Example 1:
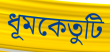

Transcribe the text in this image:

ধূমকেতুটি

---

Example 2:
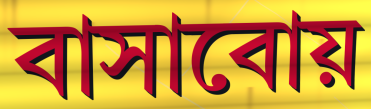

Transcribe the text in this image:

বাসাবোয়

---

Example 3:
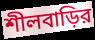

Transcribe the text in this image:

শীলবাড়ির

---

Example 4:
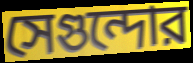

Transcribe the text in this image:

সেগুন্দোর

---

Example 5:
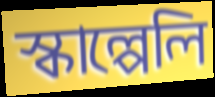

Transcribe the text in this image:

স্কাল্পেলি